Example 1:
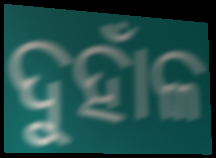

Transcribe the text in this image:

ଦୁହାଁଳ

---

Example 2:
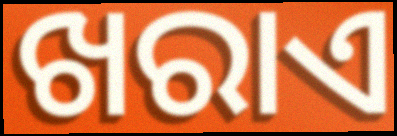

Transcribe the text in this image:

ଖରାଏ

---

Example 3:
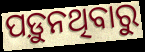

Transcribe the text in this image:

ପଡ଼ୁନଥିବାରୁ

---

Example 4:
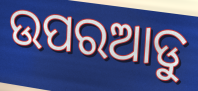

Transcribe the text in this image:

ଉପରଆଡୁ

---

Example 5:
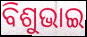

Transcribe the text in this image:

ବିଶୁଭାଇ